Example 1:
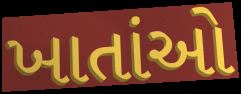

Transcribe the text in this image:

ખાતાંઓ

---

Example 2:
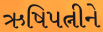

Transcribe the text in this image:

ઋષિપત્નીને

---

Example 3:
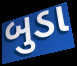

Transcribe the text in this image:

બુડા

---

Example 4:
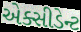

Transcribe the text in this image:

એક્સીડેન્ટ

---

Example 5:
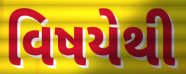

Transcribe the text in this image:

વિષયેથી